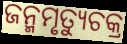
ଜନ୍ମମୃତ୍ୟୁଚକ୍ର